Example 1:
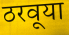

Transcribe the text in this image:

ठरवूया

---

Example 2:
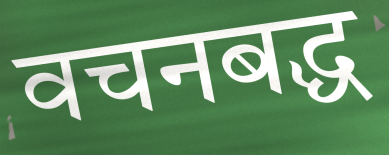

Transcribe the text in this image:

वचनबद्ध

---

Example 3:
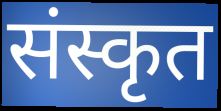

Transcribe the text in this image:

संस्कृत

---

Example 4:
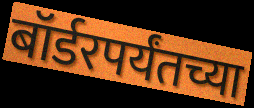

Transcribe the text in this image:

बॉर्डरपर्यंतच्या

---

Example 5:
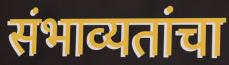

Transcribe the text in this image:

संभाव्यतांचा